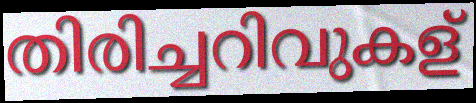
തിരിച്ചറിവുകള്